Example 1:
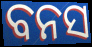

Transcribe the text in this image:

ବନସ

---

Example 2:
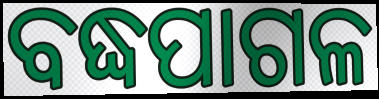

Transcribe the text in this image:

ବଦ୍ଧପାଗଳ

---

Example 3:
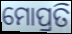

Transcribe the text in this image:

ମୋପ୍ରତି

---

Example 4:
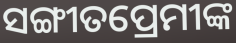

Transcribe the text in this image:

ସଙ୍ଗୀତପ୍ରେମୀଙ୍କ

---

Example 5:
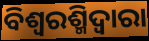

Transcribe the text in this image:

ବିଶ୍ୱରଶ୍ମିଦ୍ୱାରା